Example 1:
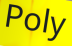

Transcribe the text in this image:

Poly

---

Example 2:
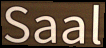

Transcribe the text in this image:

Saal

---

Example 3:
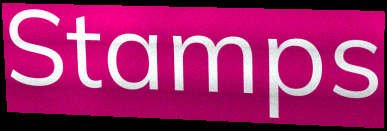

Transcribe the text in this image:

Stamps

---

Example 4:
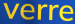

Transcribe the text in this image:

verre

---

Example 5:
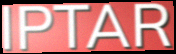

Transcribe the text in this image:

IPTAR